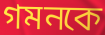
গমনকে